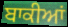
ਬਾਕੀਆਂ